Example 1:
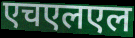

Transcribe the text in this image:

एचएलएल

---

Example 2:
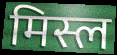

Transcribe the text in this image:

मिस्ल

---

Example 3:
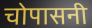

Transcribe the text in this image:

चोपासनी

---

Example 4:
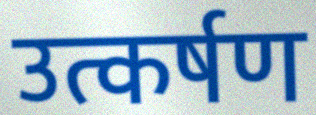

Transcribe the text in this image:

उत्कर्षण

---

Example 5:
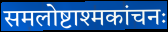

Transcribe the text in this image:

समलोष्टाश्मकांचनः